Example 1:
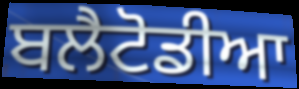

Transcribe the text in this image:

ਬਲੈਟੋਡੀਆ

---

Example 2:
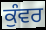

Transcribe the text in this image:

ਕੁੰਵਰ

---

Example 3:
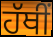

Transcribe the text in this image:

ਹੱਥੀਂ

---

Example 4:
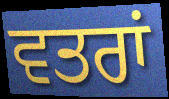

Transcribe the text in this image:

ਵਤਰਾਂ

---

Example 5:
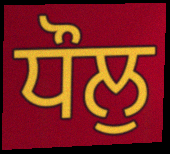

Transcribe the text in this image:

ਧੌਲੁ